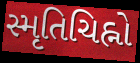
સ્મૃતિચિહ્નો